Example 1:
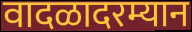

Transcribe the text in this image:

वादळादरम्यान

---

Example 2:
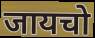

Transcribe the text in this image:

जायचो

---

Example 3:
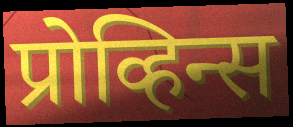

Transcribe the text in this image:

प्रोव्हिन्स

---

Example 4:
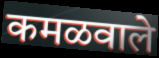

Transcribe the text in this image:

कमळवाले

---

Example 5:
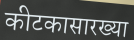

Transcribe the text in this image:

कीटकासारख्या